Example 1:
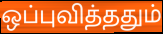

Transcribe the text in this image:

ஒப்புவித்ததும்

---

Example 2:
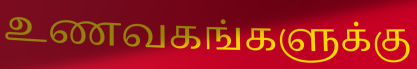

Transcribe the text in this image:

உணவகங்களுக்கு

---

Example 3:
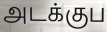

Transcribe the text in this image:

அடக்குப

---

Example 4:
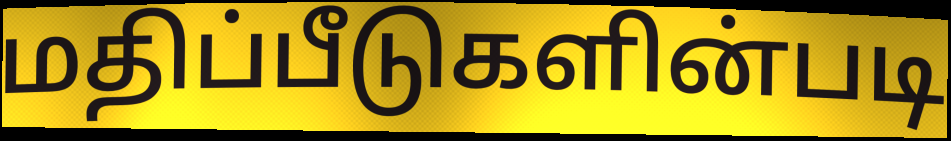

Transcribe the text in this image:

மதிப்பீடுகளின்படி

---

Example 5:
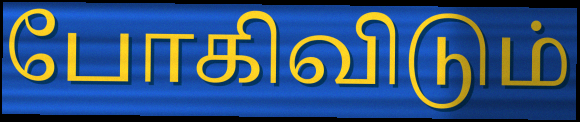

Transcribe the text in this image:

போகிவிடும்